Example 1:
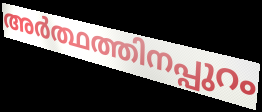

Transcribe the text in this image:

അർത്ഥത്തിനപ്പുറം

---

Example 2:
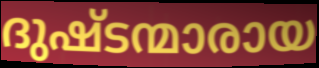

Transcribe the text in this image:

ദുഷ്ടന്മാരായ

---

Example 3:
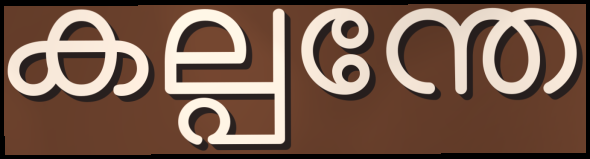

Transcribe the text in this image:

കല്പന്തേ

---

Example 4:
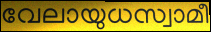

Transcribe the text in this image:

വേലായുധസ്വാമീ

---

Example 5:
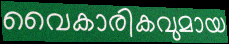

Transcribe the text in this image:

വൈകാരികവുമായ